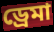
ড্রেমা